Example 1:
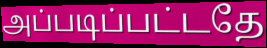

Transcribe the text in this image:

அப்படிப்பட்டதே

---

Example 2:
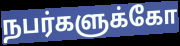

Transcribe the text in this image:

நபர்களுக்கோ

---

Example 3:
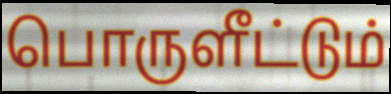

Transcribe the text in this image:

பொருளீட்டும்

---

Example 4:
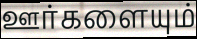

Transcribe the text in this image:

ஊர்களையும்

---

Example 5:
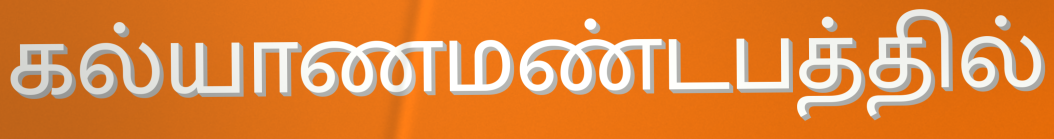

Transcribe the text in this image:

கல்யாணமண்டபத்தில்